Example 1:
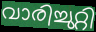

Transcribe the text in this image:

വാരിച്ചുറ്റി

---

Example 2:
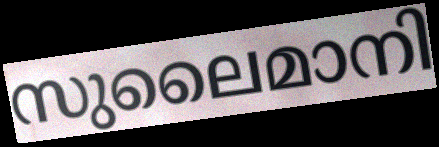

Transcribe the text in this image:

സുലൈമാനി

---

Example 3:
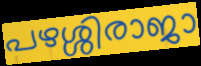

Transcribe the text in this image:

പഴശ്ശിരാജാ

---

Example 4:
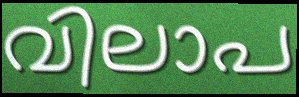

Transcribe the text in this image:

വിലാപ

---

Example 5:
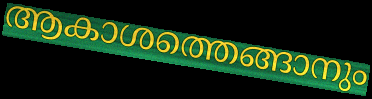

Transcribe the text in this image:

ആകാശത്തെങ്ങാനും